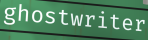
ghostwriter